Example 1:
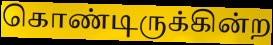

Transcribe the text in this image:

கொண்டிருக்கின்ற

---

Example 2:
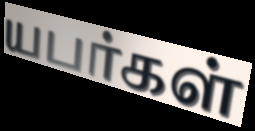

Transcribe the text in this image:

யபர்கள்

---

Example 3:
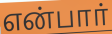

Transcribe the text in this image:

என்பார்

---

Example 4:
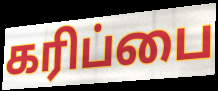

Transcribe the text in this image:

கரிப்பை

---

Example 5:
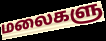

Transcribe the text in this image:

மலைகளு